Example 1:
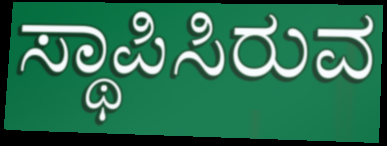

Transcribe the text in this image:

ಸ್ಥಾಪಿಸಿರುವ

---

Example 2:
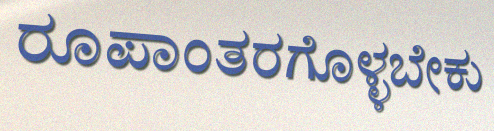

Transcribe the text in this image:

ರೂಪಾಂತರಗೊಳ್ಳಬೇಕು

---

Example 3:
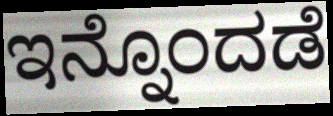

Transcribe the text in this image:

ಇನ್ನೊಂದಡೆ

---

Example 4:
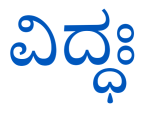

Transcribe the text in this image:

ವಿದ್ಧಃ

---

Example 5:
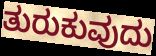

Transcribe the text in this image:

ತುರುಕುವುದು